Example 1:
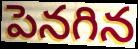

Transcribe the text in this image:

పెనగిన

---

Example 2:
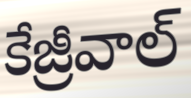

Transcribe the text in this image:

కేజ్రీవాల్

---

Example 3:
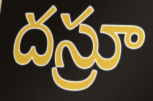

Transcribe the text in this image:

దస్రూ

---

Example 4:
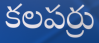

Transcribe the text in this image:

కలపర్రు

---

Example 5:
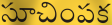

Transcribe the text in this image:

సూచింపక